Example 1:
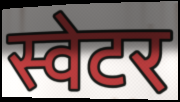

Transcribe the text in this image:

स्वेटर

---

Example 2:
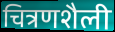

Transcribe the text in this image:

चित्रणशैली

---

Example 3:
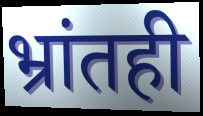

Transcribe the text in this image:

भ्रांतही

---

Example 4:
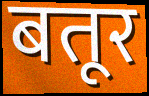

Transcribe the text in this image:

बतूर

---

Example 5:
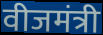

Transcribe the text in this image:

वीजमंत्री